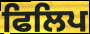
ਫਿਲਿਪ